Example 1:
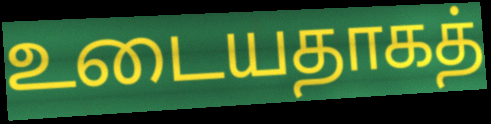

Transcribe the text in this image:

உடையதாகத்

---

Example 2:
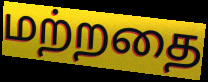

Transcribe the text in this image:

மற்றதை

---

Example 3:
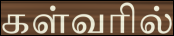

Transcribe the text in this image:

கள்வரில்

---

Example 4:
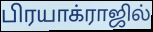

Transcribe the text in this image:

பிரயாக்ராஜில்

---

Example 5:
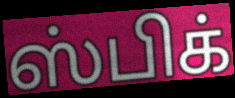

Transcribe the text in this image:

ஸ்பிக்